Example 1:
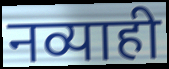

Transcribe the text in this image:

नव्याही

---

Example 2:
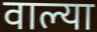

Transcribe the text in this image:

वाल्या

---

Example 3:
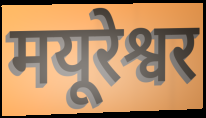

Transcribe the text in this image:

मयूरेश्वर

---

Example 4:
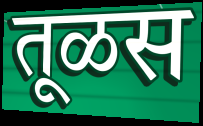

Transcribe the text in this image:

तूळस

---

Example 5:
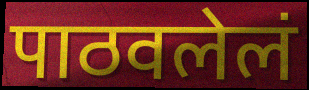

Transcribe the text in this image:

पाठवलेलं